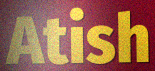
Atish